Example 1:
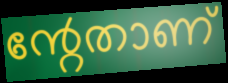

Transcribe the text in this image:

ന്റേതാണ്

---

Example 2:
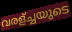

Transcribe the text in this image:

വരള്ച്ചയുടെ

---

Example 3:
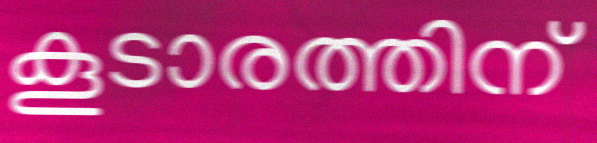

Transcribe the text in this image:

കൂടാരത്തിന്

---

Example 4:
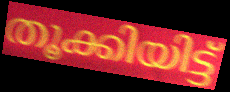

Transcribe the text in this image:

തൂക്കിയിട്ട്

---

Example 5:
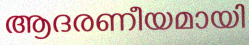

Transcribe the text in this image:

ആദരണീയമായി